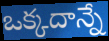
ఒక్కదాన్నే